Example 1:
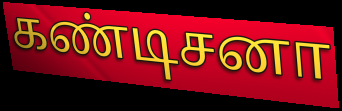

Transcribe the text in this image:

கண்டிசனா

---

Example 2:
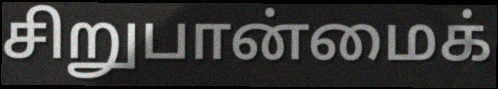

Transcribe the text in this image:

சிறுபான்மைக்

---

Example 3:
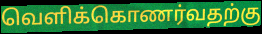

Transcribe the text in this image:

வெளிக்கொணர்வதற்கு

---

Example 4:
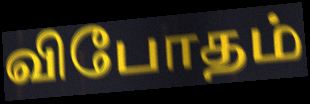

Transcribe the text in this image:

விபோதம்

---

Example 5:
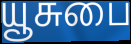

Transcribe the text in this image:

யூசுபை